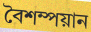
বৈশম্পয়ান